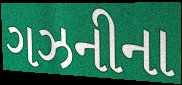
ગઝનીના